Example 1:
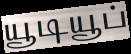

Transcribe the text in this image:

யூடியூப்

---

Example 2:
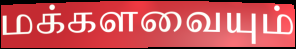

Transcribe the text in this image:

மக்களவையும்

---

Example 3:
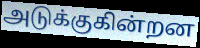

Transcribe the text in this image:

அடுக்குகின்றன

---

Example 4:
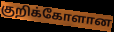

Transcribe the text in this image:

குறிக்கோளான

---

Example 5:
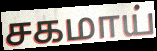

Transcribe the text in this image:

சகமாய்